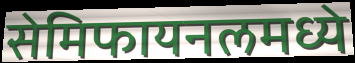
सेमिफायनलमध्ये